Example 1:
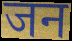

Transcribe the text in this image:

जन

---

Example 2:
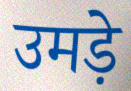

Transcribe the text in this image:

उमड़े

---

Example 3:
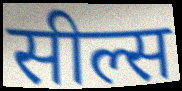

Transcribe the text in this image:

सील्स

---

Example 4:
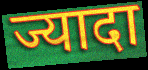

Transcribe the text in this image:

ज्यादा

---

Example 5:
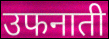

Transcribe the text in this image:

उफनाती